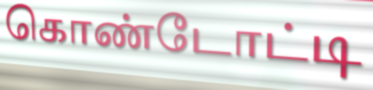
கொண்டோட்டி